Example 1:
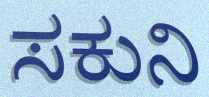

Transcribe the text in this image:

ಸಕುನಿ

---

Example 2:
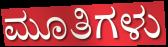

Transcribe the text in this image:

ಮೂತಿಗಳು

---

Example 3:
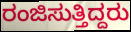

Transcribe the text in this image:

ರಂಜಿಸುತ್ತಿದ್ದರು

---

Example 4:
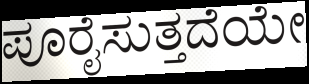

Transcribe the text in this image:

ಪೂರೈಸುತ್ತದೆಯೇ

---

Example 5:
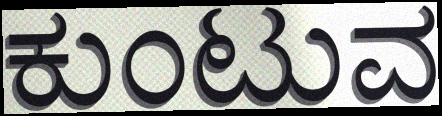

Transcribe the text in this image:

ಕುಂಟುವ